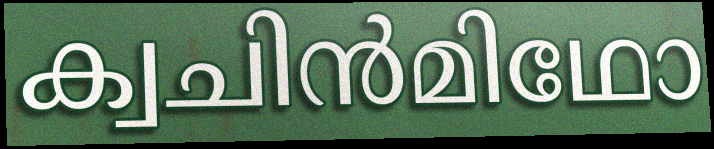
ക്വചിൻമിഥോ